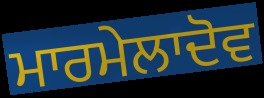
ਮਾਰਮੇਲਾਦੋਵ